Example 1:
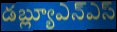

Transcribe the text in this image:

డబ్ల్యూఎన్ఎస్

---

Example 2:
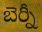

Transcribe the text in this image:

బెర్నీ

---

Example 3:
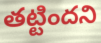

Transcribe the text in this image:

తట్టిందని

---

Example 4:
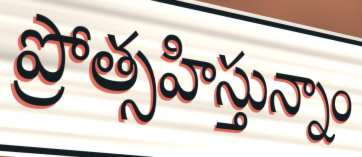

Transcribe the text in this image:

ప్రోత్సహిస్తున్నాం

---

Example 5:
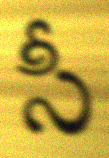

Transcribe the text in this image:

సీ